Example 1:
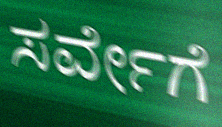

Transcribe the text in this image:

ಸರ್ವೇಗೆ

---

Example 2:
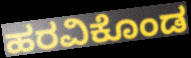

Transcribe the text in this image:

ಹರವಿಕೊಂಡ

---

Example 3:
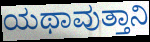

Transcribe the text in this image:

ಯಥಾವುತ್ತಾನಿ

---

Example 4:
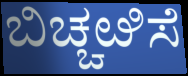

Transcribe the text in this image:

ಬಿಚ್ಚೞಿಸೆ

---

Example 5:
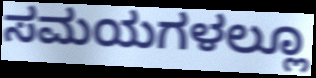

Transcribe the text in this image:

ಸಮಯಗಳಲ್ಲೂ